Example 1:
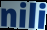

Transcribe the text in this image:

nili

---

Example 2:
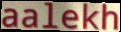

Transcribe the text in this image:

aalekh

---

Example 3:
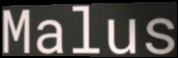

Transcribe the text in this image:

Malus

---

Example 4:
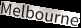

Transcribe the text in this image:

Melbourne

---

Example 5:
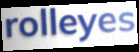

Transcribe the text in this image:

rolleyes